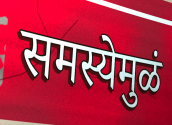
समस्येमुळं